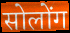
सोलोंग